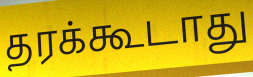
தரக்கூடாது